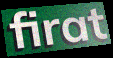
firat